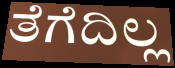
ತೆಗೆದಿಲ್ಲ